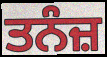
ਤਨੰਜ਼